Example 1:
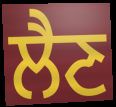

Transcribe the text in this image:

ਲੈਣ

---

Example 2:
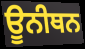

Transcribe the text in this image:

ਊਨੀਥਨ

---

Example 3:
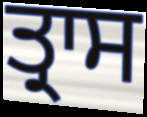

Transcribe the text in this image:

ਤ੍ਰਾਸ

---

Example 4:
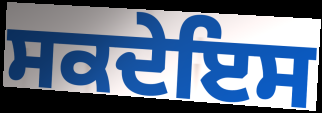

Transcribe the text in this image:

ਸਕਦੇਇਸ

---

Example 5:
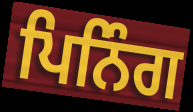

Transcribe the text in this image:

ਪਿਨਿੰਗ